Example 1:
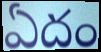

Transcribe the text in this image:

ఏదం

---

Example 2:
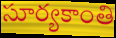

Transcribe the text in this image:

సూర్యకాంతి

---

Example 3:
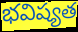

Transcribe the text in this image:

భవిష్యత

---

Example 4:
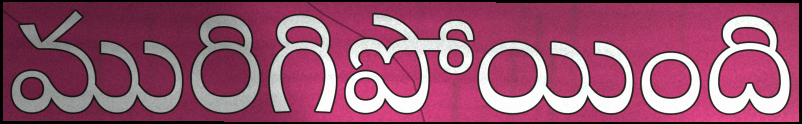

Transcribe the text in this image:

మురిగిపోయింది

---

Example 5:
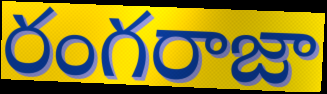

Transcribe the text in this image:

రంగరాజా